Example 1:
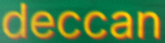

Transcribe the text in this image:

deccan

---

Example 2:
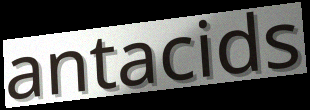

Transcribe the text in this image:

antacids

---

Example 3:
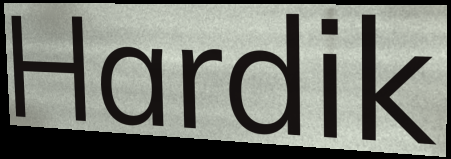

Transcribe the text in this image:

Hardik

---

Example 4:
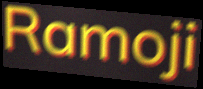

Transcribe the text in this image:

Ramoji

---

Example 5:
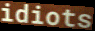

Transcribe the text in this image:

idiots